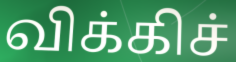
விக்கிச்